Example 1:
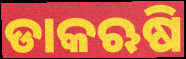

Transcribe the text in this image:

ଡାକଋଷି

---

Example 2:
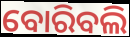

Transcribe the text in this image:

ବୋରିବଲି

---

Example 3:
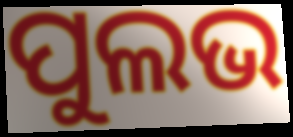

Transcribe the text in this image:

ପୁଲଭ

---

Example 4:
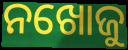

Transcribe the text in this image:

ନଖୋଜୁ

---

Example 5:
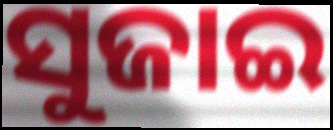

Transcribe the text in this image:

ସୁଜାଇ